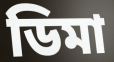
ডিমা